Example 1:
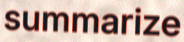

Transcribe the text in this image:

summarize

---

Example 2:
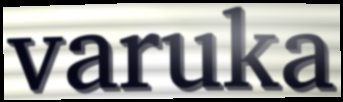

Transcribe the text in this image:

varuka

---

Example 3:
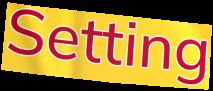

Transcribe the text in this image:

Setting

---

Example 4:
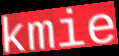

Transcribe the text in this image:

kmie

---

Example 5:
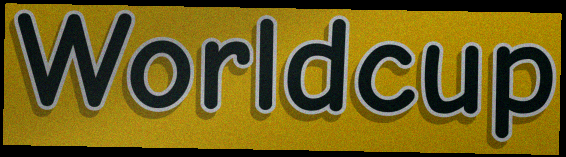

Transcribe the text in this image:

Worldcup